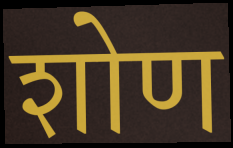
शोण